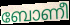
ബോണീ